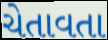
ચેતાવતા